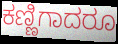
ಕಣ್ಣಿಗಾದರೂ